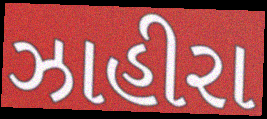
ઝાહીરા